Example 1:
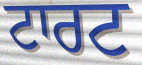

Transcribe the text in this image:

ਟਾਰਟ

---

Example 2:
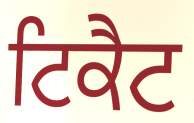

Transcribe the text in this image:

ਟਿਕੈਟ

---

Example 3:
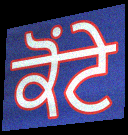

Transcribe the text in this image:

ਕੋਂਟੇ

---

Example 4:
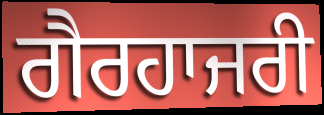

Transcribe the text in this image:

ਗੈਰਹਾਜਰੀ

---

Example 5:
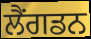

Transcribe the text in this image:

ਲੈਂਗਡਨ